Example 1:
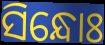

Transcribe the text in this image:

ସିନ୍ଧୋଃ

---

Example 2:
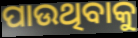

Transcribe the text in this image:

ପାଉଥିବାକୁ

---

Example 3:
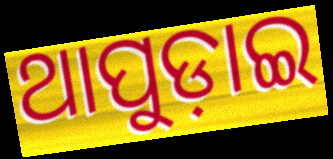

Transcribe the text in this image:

ଥାପୁଡ଼ାଇ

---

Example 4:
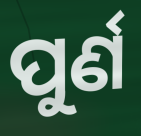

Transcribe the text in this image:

ପୁର୍ଣ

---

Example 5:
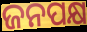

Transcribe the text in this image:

ଜନପକ୍ଷ